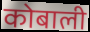
कोबाली